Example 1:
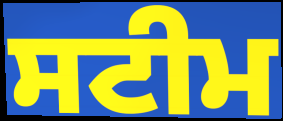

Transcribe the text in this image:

ਸਟੀਮ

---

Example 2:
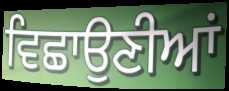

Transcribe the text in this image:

ਵਿਛਾਉਣੀਆਂ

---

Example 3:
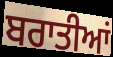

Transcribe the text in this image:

ਬਰਾਤੀਆਂ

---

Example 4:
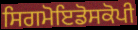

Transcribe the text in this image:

ਸਿਗਮੋਇਡੋਸਕੋਪੀ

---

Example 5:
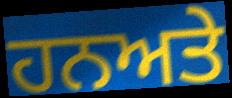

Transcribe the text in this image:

ਹਨਅਤੇ